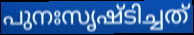
പുനഃസൃഷ്ടിച്ചത്